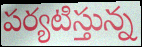
పర్యటిస్తున్న